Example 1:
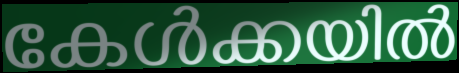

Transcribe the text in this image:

കേൾക്കയിൽ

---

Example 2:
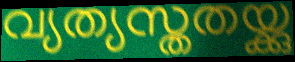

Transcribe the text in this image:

വ്യത്യസ്തതയ്ക്കു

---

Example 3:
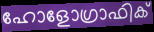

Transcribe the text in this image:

ഹോളോഗ്രാഫിക്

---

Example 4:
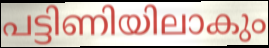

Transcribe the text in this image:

പട്ടിണിയിലാകും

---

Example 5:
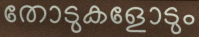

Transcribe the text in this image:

തോടുകളോടും